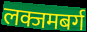
लक्जमबर्ग